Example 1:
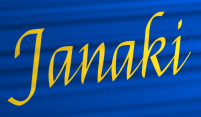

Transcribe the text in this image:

Janaki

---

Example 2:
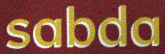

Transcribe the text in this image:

sabda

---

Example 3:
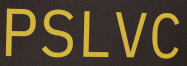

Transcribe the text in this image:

PSLVC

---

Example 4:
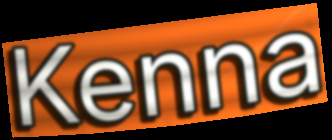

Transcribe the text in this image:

Kenna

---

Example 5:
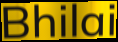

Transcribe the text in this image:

Bhilai